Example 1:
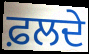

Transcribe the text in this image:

ਫ਼ਲਦੇ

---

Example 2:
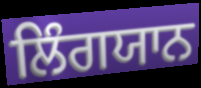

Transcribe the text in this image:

ਲਿੰਗਯਾਨ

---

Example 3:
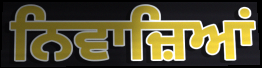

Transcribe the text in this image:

ਨਿਵਾਜ਼ਿਆਂ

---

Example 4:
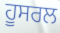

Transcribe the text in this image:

ਹੂਸਰਲ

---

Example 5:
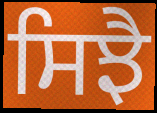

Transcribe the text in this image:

ਸਿਝੈ